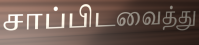
சாப்பிடவைத்து